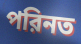
পরিনত